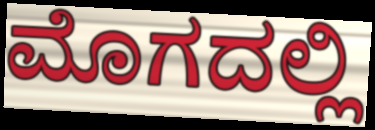
ಮೊಗದಲ್ಲಿ